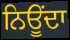
ਨਿਊਂਦਾ